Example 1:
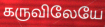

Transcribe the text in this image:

கருவிலேயே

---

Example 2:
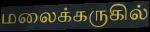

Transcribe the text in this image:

மலைக்கருகில்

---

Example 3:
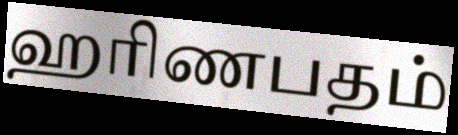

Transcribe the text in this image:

ஹரிணபதம்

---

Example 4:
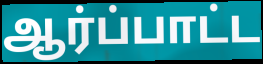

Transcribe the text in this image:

ஆர்ப்பாட்ட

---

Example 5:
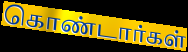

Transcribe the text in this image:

கொண்டார்கள்